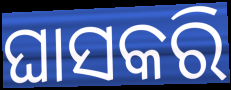
ଘାସକରି